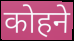
कोहने